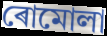
ৰোমোলা